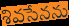
శివసేనను